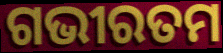
ଗଭୀରତମ